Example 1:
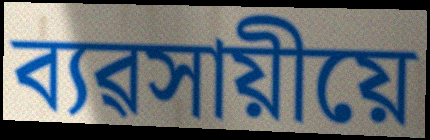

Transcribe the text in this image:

ব্যৱসায়ীয়ে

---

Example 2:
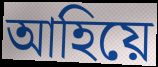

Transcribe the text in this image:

আহিয়ে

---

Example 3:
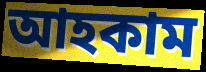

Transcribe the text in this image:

আহকাম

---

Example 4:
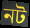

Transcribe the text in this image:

নট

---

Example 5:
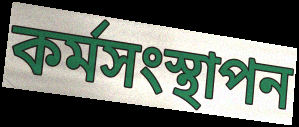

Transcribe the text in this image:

কৰ্মসংস্থাপন